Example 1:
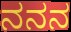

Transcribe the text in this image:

ನನನ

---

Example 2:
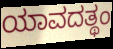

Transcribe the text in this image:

ಯಾವದತ್ಥಂ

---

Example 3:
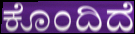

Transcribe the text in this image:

ಕೊಂದಿದೆ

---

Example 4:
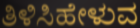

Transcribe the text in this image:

ತಿಳಿಸಿಹೇಳುವ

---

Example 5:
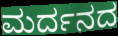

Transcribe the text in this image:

ಮರ್ದನದ